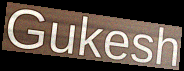
Gukesh